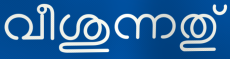
വീശുന്നതു്